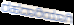
ರಹದಾರಿಯಾಗಿ